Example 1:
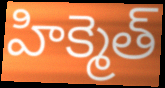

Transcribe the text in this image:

హిక్మెత్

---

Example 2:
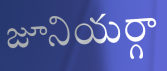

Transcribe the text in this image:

జూనియర్గా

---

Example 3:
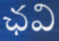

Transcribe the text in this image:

ఛవి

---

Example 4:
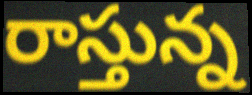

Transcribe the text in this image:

రాస్తున్న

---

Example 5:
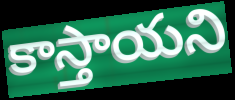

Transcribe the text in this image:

కాస్తాయని